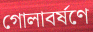
গোলাবর্ষণে